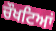
ਚੌਖਟਿਆਂ